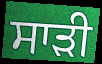
ਸਾੜੀ